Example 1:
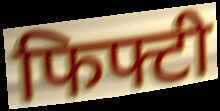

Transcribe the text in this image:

फिफ्टी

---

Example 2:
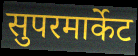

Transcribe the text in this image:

सुपरमार्केट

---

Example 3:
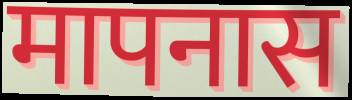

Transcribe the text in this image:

मापनास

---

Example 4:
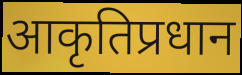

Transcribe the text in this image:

आकृतिप्रधान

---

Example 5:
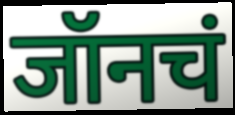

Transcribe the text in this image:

जॉनचं